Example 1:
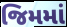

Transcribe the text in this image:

જિમમાં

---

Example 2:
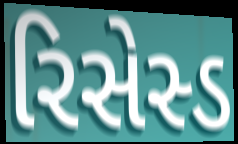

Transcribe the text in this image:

રિસેસ્ડ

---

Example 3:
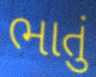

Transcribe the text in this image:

ભાતું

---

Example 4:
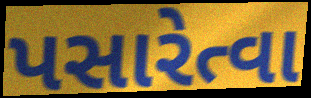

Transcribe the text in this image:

પસારેત્વા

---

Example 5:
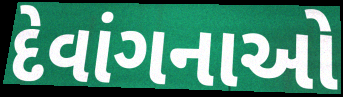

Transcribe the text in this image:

દેવાંગનાઓ